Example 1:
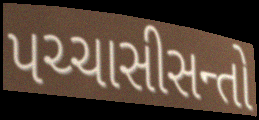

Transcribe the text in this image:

પચ્ચાસીસન્તો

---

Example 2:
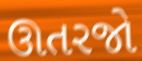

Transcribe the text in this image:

ઊતરજો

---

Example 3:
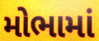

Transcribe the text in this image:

મોભામાં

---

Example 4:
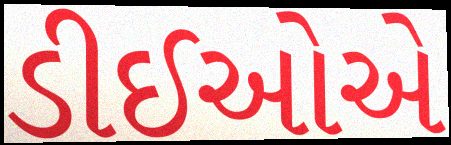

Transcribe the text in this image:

ડીઈઓએ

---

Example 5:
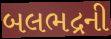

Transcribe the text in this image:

બલભદ્રની